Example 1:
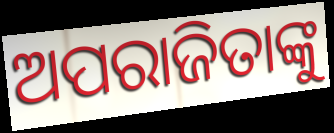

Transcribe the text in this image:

ଅପରାଜିତାଙ୍କୁ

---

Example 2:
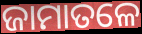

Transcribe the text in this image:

ଜାମାତଳେ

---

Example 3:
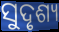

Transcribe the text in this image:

ସୁଦୃଶ୍ଯ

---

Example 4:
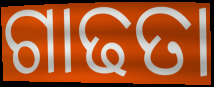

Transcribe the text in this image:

ଗାଢତା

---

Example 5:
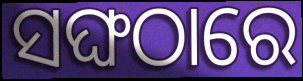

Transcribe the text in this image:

ସଙ୍ଘଠାରେ